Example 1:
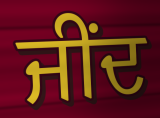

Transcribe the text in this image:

ਜੀਂਦ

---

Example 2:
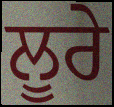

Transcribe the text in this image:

ਲੂਰੇ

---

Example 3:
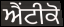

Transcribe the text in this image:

ਐਂਟੀਕੋ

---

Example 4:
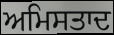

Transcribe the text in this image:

ਅਮਿਸਤਾਦ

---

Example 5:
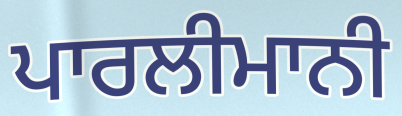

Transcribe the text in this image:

ਪਾਰਲੀਮਾਨੀ